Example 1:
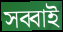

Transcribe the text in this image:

সব্বাই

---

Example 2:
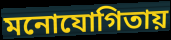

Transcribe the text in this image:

মনোযোগিতায়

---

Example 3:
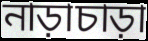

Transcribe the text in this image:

নাড়াচাড়া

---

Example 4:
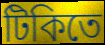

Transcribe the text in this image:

টিকিতে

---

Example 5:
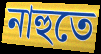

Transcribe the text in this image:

নাহুতে